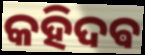
କହିଦଵ